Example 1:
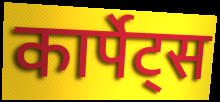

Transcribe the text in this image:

कार्पेट्स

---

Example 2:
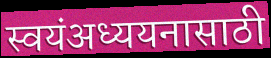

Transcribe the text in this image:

स्वयंअध्ययनासाठी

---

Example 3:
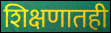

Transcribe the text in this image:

शिक्षणातही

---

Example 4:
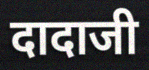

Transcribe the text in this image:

दादाजी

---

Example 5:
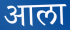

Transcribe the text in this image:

आला